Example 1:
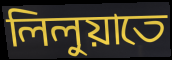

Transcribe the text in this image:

লিলুয়াতে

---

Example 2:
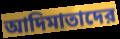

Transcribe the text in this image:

আদিমাতাদের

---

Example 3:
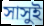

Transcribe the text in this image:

সাসুই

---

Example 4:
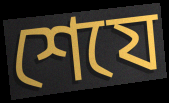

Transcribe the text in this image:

শেযে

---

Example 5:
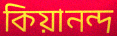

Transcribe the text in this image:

কিয়ানন্দ